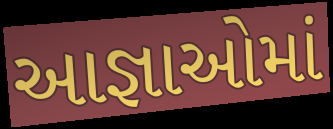
આજ્ઞાઓમાં